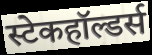
स्टेकहॉल्डर्स